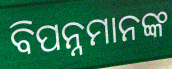
ବିପନ୍ନମାନଙ୍କ